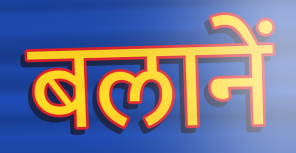
बलानें